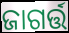
ଜାଗର୍ତ୍ତ